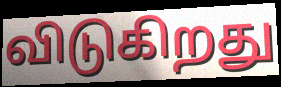
விடுகிறது